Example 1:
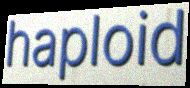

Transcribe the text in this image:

haploid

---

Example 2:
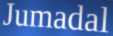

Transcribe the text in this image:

Jumadal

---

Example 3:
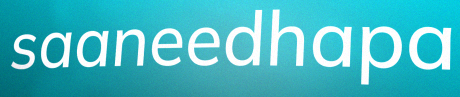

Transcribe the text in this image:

saaneedhapa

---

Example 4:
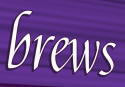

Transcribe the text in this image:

brews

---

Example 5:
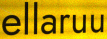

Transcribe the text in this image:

ellaruu